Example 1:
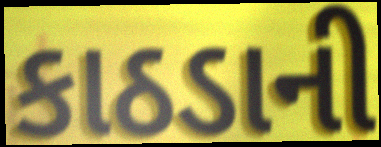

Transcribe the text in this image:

કાઠડાની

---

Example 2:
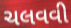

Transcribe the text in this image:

ચલવવી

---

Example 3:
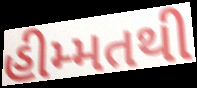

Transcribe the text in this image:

હીમ્મતથી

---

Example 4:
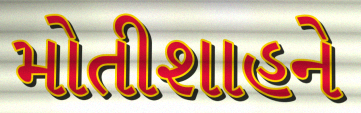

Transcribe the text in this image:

મોતીશાહને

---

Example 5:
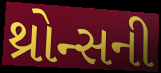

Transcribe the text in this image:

થ્રોન્સની